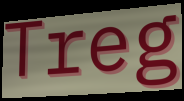
Treg